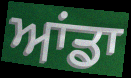
ਆਂਡਾ